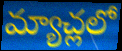
మ్యాచ్లలో